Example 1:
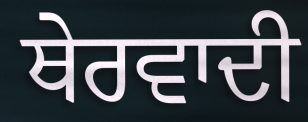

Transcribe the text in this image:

ਥੇਰਵਾਦੀ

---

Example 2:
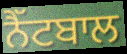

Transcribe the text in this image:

ਨੈੱਟਬਾਲ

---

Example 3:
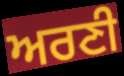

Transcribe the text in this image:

ਅਰਣੀ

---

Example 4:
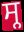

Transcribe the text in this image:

ਸ੍ਨ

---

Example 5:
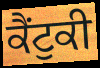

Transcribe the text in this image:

ਕੈਂਟੁਕੀ